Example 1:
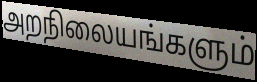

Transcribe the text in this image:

அறநிலையங்களும்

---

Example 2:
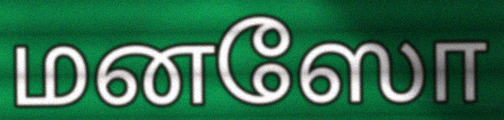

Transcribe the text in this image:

மனஸோ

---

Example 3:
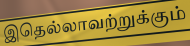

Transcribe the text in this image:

இதெல்லாவற்றுக்கும்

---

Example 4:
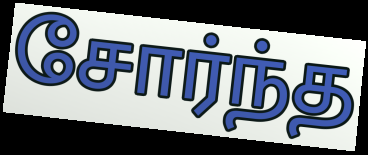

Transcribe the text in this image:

சோர்ந்த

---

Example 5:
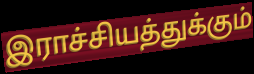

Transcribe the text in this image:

இராச்சியத்துக்கும்